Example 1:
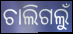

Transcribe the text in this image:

ଚାଲିଗଲୁଁ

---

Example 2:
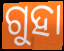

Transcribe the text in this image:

ଗୁହା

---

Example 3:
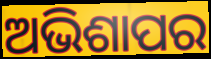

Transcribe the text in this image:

ଅଭିଶାପର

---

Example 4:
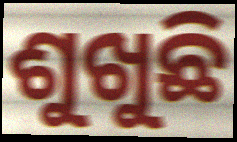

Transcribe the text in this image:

ଶୁଖୁଛି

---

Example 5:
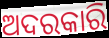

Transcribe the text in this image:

ଅଦରକାରି